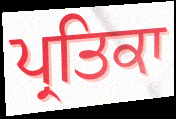
ਪ੍ਰਤਿਕਾ